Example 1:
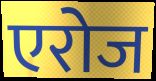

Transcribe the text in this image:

एरोज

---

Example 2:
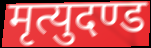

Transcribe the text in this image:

मृत्युदण्ड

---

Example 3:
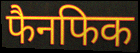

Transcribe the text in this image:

फैनफिक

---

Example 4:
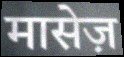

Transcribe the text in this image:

मासेज़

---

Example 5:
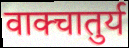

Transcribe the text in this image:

वाक्चातुर्य